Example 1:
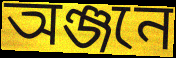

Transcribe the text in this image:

অঞ্জনে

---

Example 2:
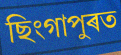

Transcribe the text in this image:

ছিংগাপুৰত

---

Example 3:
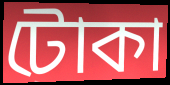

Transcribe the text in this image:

টোকা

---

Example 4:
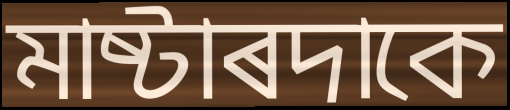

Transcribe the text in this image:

মাষ্টাৰদাকে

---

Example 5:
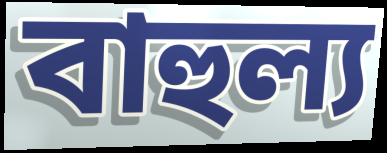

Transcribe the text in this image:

বাহুল্য